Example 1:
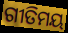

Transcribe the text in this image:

ଗୀତିମୟ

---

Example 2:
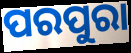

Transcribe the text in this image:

ପରପୁରା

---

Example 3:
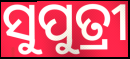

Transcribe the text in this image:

ସୁପୁତ୍ରୀ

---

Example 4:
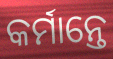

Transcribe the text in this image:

କର୍ମାନ୍ତେ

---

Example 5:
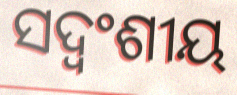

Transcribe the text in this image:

ସଦ୍ବଂଶୀୟ